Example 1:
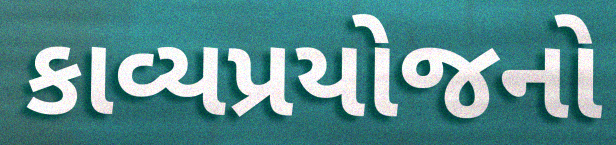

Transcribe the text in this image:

કાવ્યપ્રયોજનો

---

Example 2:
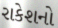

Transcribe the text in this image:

રાકેશનો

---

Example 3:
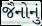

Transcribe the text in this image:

જૈનોનું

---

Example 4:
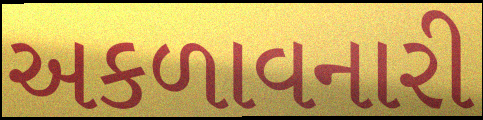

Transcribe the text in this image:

અકળાવનારી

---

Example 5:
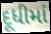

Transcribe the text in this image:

દૂધીમાં